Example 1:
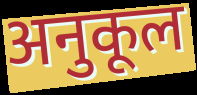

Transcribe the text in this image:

अनुकूल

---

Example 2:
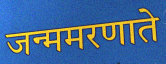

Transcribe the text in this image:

जन्ममरणाते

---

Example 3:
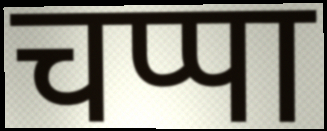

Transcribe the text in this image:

चप्पा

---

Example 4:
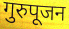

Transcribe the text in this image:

गुरुपूजन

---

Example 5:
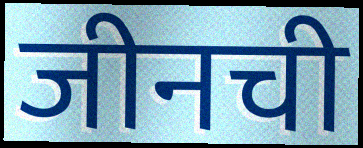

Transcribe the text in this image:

जीनची